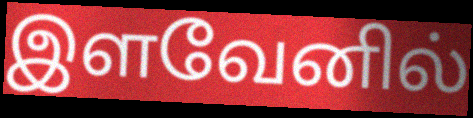
இளவேனில்